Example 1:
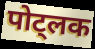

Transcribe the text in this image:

पोट्लक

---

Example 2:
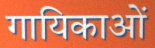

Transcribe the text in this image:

गायिकाओं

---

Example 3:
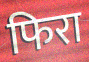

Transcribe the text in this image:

फिरा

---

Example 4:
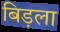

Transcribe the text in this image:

बिड़ला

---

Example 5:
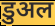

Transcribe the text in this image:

डुअल